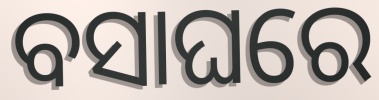
ବସାଘରେ